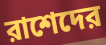
রাশেদের